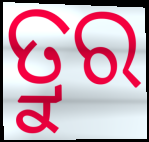
ତ୍ରୁର